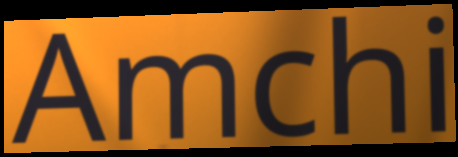
Amchi